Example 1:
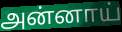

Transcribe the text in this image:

அன்னாய்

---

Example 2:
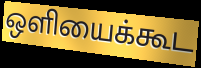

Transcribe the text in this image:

ஒளியைக்கூட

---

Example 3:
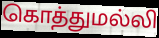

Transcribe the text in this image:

கொத்துமல்லி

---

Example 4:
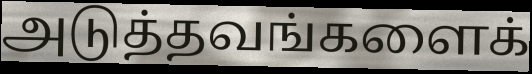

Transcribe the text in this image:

அடுத்தவங்களைக்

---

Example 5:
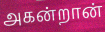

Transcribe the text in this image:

அகன்றான்